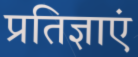
प्रतिज्ञाएं